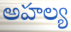
అహల్య